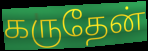
கருதேன்